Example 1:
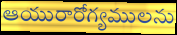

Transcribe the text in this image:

ఆయురారోగ్యములను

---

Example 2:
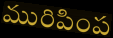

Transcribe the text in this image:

మురిపింప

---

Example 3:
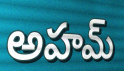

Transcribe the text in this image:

అహమ్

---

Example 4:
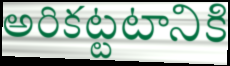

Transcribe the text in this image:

అరికట్టటానికి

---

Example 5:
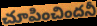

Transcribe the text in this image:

చూపించిందనీ